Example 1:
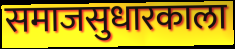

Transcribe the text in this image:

समाजसुधारकाला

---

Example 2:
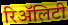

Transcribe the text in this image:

रिॲलिटी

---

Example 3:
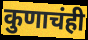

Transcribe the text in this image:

कुणाचंही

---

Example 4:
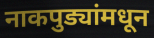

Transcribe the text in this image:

नाकपुड्यांमधून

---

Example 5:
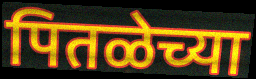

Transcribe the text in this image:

पितळेच्या